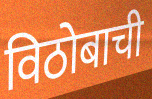
विठोबाची